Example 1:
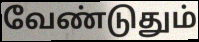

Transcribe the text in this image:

வேண்டுதும்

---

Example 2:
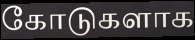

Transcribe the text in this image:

கோடுகளாக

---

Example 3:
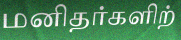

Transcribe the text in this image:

மனிதர்களிற்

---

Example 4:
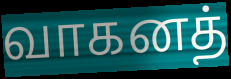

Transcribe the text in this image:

வாகனத்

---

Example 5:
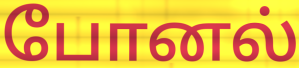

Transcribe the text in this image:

போனல்